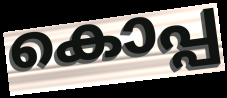
കൊപ്പ